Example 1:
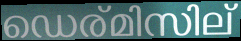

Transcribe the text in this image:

ഡെര്മിസില്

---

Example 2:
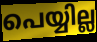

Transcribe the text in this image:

പെയ്യില്ല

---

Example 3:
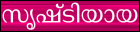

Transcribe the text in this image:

സൃഷ്ടിയായ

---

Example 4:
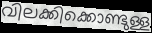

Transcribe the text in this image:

വിലക്കിക്കൊണ്ടുള്ള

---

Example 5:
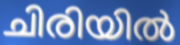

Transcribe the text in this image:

ചിരിയിൽ